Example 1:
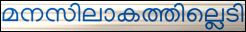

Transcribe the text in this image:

മനസിലാകത്തില്ലെടി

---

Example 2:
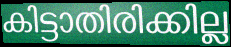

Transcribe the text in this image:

കിട്ടാതിരിക്കില്ല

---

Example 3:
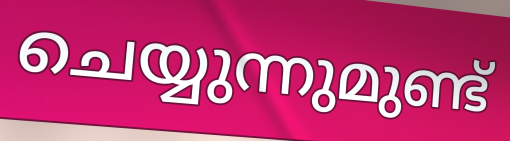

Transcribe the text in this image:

ചെയ്യുന്നുമുണ്ട്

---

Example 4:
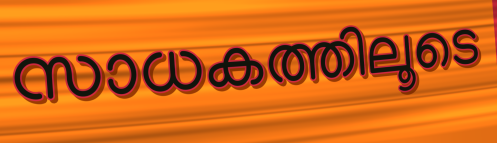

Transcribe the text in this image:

സാധകത്തിലൂടെ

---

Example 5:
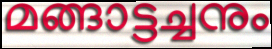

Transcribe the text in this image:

മങ്ങാട്ടച്ചനും